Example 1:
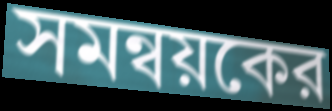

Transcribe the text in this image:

সমন্বয়কের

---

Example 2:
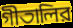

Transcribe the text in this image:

গীতালির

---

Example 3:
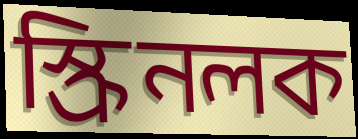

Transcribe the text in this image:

স্ক্রিনলক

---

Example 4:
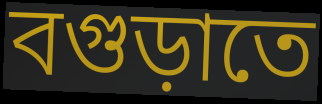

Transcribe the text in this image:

বগুড়াতে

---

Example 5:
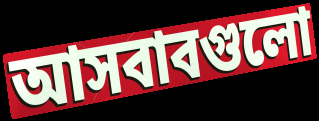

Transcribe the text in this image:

আসবাবগুলো